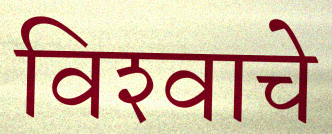
विश्वाचे